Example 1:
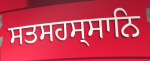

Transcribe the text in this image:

ਸਤਸਹਸ੍ਸਾਨਿ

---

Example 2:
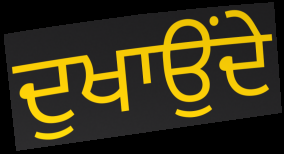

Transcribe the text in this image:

ਦੁਖਾਉਂਦੇ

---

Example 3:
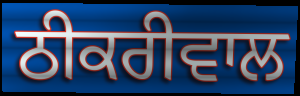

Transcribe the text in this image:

ਠੀਕਰੀਵਾਲ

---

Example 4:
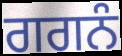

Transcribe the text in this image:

ਗਗਨੰ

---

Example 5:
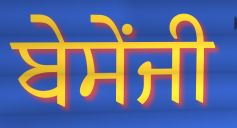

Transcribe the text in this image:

ਬੇਸੇਂਜੀ